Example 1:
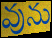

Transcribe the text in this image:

వును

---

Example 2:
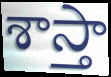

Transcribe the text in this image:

శాస్తా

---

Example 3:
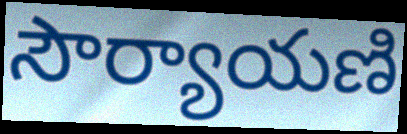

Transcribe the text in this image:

సౌర్యాయణి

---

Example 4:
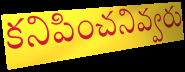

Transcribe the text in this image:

కనిపించనివ్వరు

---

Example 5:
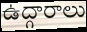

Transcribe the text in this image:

ఉద్గారాలు